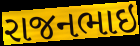
રાજનભાઇ